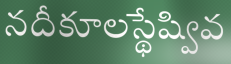
నదీకూలస్థేష్వివ